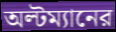
অল্টম্যানের